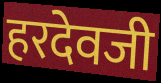
हरदेवजी